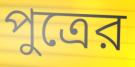
পুত্রের